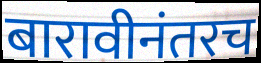
बारावीनंतरच